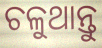
ଚଳୁଥାନ୍ତୁ